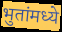
भुतांमध्ये